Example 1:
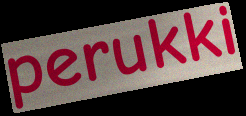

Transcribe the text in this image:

perukki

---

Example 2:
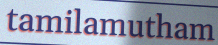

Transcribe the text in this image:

tamilamutham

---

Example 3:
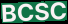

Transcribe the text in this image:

BCSC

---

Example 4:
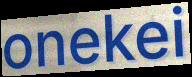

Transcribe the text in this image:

onekei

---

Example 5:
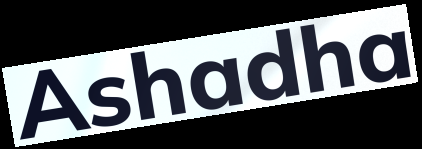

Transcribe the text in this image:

Ashadha